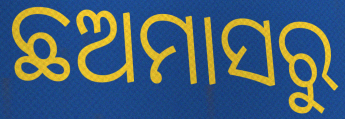
ଛଅମାସରୁ